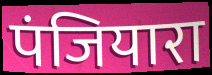
पंजियारा